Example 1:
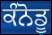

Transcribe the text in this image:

ਕੰਨੋਡੂ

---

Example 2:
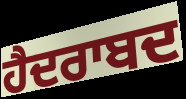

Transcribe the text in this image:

ਹੈਦਰਾਬਦ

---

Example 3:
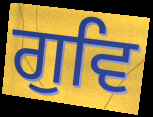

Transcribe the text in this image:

ਗੁਵਿ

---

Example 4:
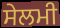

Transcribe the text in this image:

ਸੇਲਮੀ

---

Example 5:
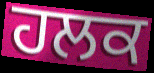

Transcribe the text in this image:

ਹਲਕ